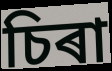
চিৰা